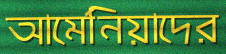
আর্মেনিয়াদের